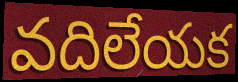
వదిలేయక